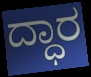
ದ್ಧಾರ